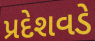
પ્રદેશવડે